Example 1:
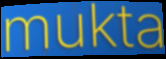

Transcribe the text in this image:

mukta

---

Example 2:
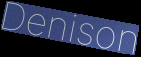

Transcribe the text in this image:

Denison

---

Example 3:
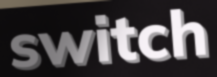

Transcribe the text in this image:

switch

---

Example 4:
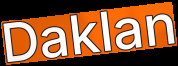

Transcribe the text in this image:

Daklan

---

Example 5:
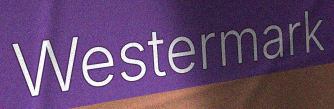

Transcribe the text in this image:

Westermark